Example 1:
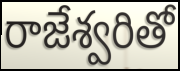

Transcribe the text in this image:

రాజేశ్వరితో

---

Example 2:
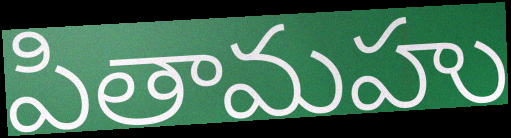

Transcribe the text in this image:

పితామహు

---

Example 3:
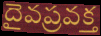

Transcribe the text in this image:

దైవప్రవక్త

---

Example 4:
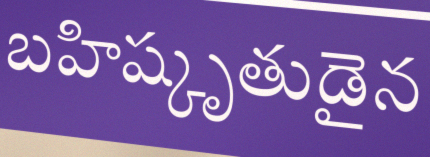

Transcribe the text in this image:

బహిష్కృతుడైన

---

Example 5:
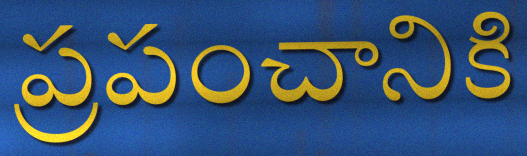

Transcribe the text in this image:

ప్రపంచానికి